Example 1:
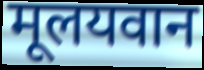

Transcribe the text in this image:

मूलयवान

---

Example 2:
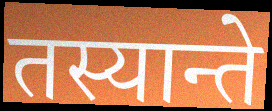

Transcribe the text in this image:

तस्यान्ते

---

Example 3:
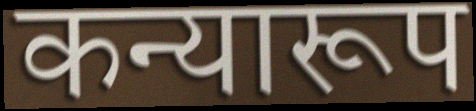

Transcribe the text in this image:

कन्यारूप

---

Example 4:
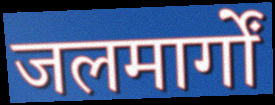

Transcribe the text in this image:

जलमार्गों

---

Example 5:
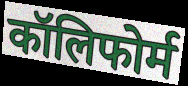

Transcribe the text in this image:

कॉलिफोर्म